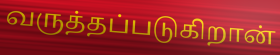
வருத்தப்படுகிறான்